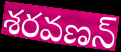
శరవణన్